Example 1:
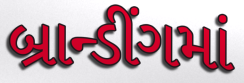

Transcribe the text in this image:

બ્રાન્ડીંગમાં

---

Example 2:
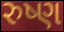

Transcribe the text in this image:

રુષ્ણ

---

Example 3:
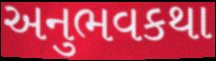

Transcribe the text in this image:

અનુભવકથા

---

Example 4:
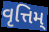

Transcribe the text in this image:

વૃત્તિમ્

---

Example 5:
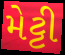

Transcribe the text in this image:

મેટ્ટી